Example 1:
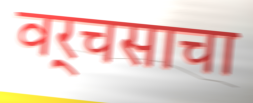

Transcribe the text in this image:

वर्चसाचा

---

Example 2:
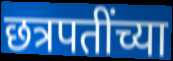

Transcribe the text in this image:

छत्रपतींच्या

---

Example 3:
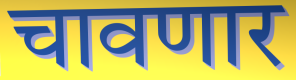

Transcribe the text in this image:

चावणार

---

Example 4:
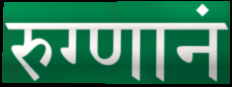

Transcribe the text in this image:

रुग्णानं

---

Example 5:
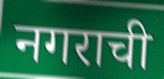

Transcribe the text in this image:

नगराची